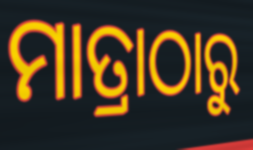
ମାତ୍ରାଠାରୁ